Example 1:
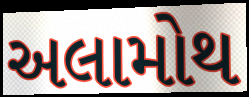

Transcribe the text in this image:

અલામોથ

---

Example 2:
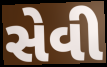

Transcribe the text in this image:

સેવી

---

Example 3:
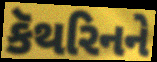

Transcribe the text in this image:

કૅથરિનને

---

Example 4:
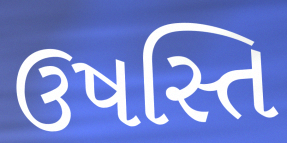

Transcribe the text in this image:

ઉષસ્તિ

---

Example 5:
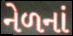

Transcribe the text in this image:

નેળનાં